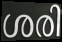
ശരി